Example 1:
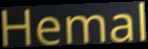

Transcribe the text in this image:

Hemal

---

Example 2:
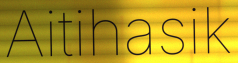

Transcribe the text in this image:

Aitihasik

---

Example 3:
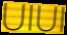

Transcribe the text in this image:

UIUI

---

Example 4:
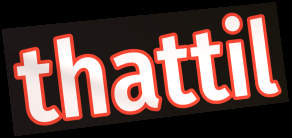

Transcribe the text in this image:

thattil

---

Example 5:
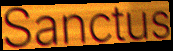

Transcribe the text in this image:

Sanctus